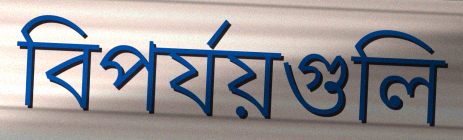
বিপর্যয়গুলি